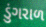
ડુંગરાળ